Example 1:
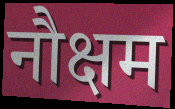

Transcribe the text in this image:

नौक्षम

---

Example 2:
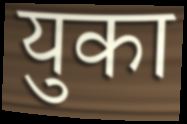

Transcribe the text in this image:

युका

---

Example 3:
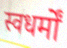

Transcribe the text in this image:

स्वधर्मों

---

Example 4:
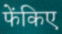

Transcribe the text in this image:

फेंकिए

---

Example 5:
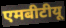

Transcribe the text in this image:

एमबीटीयू